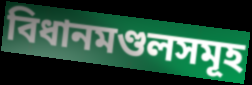
বিধানমণ্ডলসমূহ